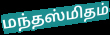
மந்தஸ்மிதம்